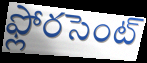
ఫ్లోరసెంట్